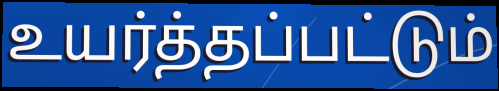
உயர்த்தப்பட்டும்